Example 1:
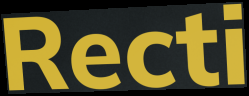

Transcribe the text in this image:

Recti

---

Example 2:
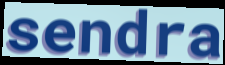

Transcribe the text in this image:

sendra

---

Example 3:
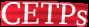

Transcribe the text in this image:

CETPs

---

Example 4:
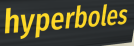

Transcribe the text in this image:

hyperboles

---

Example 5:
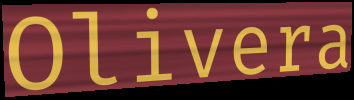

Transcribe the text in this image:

Olivera